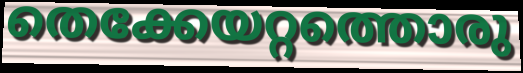
തെക്കേയറ്റത്തൊരു